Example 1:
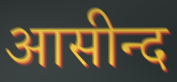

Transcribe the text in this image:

आसीन्द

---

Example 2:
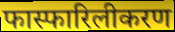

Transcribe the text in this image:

फास्फारिलीकरण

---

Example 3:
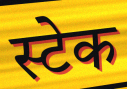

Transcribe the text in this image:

स्टेक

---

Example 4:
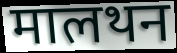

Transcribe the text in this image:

मालथन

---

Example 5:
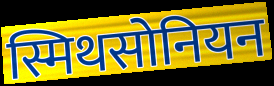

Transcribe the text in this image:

स्मिथसोनियन